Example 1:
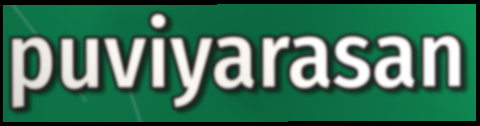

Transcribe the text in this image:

puviyarasan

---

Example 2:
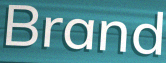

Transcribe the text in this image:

Brand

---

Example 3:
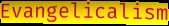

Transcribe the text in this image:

Evangelicalism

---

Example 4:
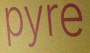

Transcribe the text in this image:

pyre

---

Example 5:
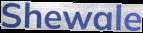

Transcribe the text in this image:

Shewale